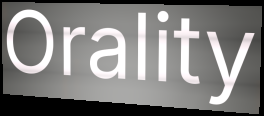
Orality